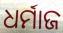
ଧର୍ମାଜ